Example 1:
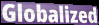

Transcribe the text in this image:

Globalized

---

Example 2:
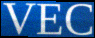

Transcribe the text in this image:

VEC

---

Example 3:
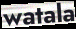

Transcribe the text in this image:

watala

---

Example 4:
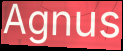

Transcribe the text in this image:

Agnus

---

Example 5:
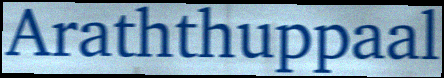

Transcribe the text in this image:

Araththuppaal